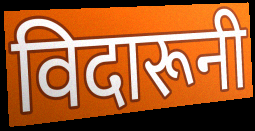
विदारूनी